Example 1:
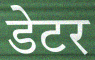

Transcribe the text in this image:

डेटर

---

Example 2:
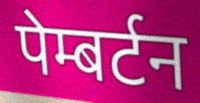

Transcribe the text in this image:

पेम्बर्टन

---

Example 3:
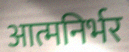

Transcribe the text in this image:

आत्मनिर्भर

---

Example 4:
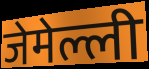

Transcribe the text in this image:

जेमेल्ली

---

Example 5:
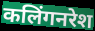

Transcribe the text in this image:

कलिंगनरेश